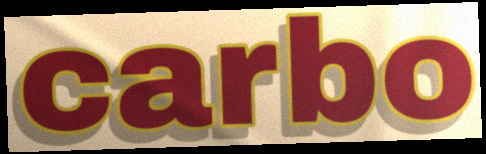
carbo